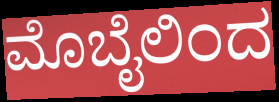
ಮೊಬೈಲಿಂದ